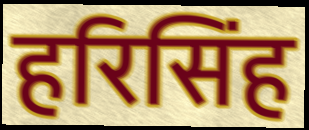
हरिसिंह